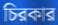
চিরকার